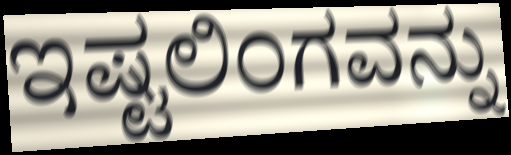
ಇಷ್ಟಲಿಂಗವನ್ನು